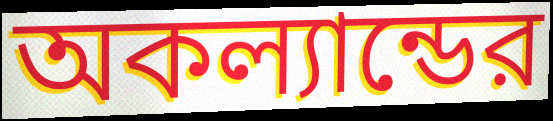
অকল্যান্ডের